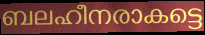
ബലഹീനരാകട്ടെ